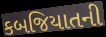
કબજિયાતની